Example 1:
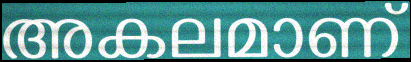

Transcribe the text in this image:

അകലമാണ്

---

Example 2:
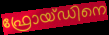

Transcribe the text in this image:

ഫ്രോയ്ഡിനെ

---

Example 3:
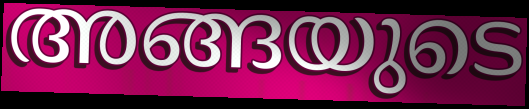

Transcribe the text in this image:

അങ്ങയുടെ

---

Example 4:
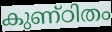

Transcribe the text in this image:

കുണ്ഠിതം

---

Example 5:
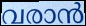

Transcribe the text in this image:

വരാൻ